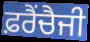
ਫ਼ਰੈਂਚੈਜੀ